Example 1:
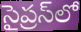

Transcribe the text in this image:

సైప్రస్‌లో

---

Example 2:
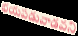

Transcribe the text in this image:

భయపడువాడవని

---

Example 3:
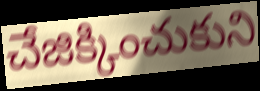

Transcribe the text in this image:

చేజిక్కించుకుని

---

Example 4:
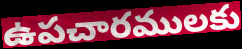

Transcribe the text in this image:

ఉపచారములకు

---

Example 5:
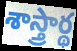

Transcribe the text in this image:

శాస్త్రార్థ